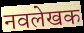
नवलेखक